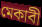
মেকাবী